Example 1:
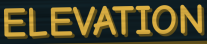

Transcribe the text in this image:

ELEVATION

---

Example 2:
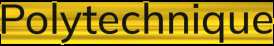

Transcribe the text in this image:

Polytechnique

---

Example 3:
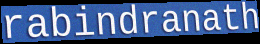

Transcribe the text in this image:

rabindranath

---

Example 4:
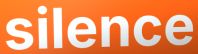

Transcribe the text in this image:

silence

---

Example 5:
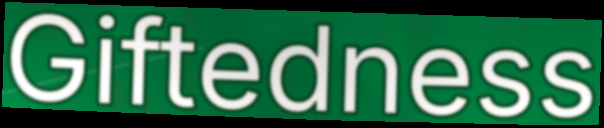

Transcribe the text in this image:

Giftedness